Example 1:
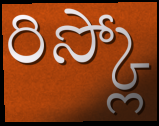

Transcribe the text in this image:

రిస్క్లో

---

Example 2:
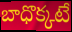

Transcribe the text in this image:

బాధొక్కటే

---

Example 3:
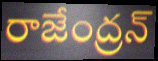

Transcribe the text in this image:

రాజేంద్రన్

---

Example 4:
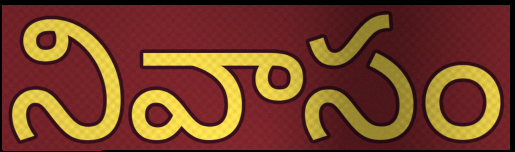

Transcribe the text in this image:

నివాసం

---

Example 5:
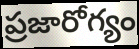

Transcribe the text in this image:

ప్రజారోగ్యం